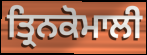
ਤ੍ਰਿਨਕੋਮਾਲੀ